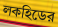
লকহিডের